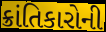
ક્રાંતિકારોની